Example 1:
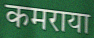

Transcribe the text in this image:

कमराया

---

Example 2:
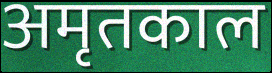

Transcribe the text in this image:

अमृतकाल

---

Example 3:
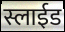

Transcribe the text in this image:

स्लाईड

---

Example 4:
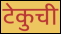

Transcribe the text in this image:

टेकुची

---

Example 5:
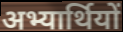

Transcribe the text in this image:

अभ्यार्थियों